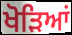
ਖੋੜਿਆਂ